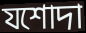
যশোদা